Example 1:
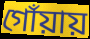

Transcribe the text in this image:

গোঁয়ায়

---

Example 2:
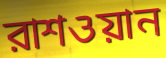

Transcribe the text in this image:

রাশওয়ান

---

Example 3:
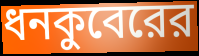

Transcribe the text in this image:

ধনকুবেরের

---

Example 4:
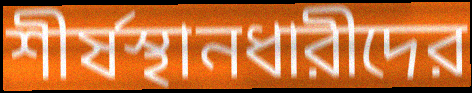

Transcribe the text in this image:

শীর্ষস্থানধারীদের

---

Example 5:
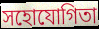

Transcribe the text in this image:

সহোযোগিতা